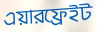
এয়ারফ্রেইট